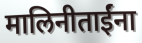
मालिनीताईंना